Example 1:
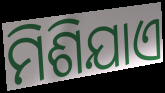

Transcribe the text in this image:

ମିଶିଯାଏ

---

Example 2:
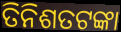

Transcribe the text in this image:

ତିନିଶତଟଙ୍କା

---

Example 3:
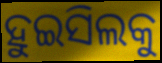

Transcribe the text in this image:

ହୁଇସିଲକୁ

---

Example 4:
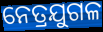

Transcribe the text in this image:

ନେତ୍ରଯୁଗଳ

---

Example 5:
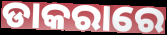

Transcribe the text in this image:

ଡାକରାରେ